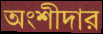
অংশীদার